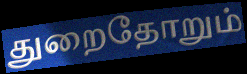
துறைதோறும்